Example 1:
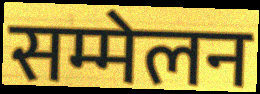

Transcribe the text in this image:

सम्‍मेलन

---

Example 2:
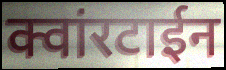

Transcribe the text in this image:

क्वांरटाईन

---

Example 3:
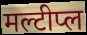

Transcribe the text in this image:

मल्टीप्ल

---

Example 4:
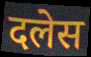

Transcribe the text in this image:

दलेस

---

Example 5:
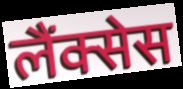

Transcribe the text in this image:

लैंक्सेस